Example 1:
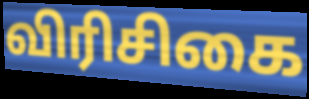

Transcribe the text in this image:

விரிசிகை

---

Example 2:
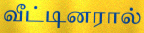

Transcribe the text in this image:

வீட்டினரால்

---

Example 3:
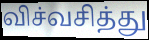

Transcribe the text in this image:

விச்வசித்து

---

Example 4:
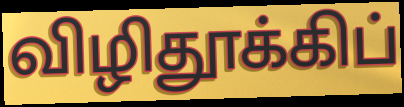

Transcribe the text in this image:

விழிதூக்கிப்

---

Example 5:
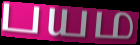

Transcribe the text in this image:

பயம